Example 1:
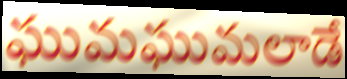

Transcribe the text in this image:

ఘుమఘుమలాడే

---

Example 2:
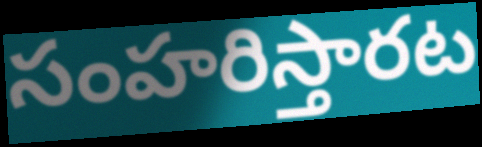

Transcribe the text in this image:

సంహరిస్తారట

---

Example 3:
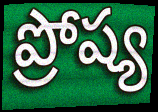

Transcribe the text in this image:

ప్రోష్య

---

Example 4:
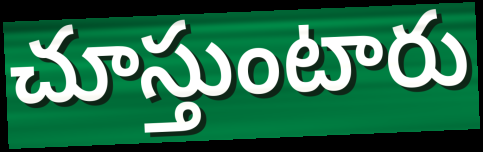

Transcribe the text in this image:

చూస్తుంటారు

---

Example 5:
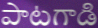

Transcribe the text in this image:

పాటగాడి